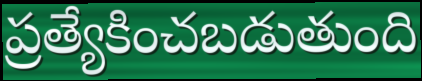
ప్రత్యేకించబడుతుంది